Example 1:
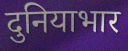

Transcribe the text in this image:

दुनियाभार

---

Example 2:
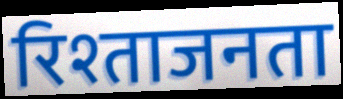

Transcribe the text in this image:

रिश्ताजनता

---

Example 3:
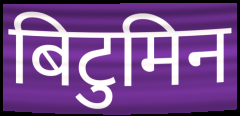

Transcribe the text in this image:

बिटुमिन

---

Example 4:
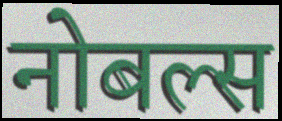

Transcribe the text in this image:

नोबल्स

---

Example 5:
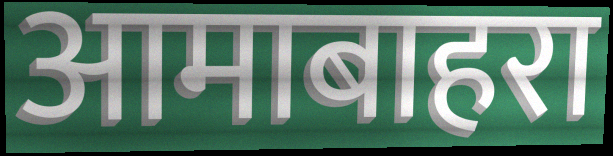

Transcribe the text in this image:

आमाबाहरा